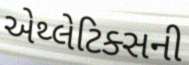
એથ્લેટિક્સની